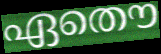
ഏതൌ